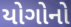
યોગોનો